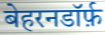
बेहरनडॉर्फ़